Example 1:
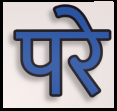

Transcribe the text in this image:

परे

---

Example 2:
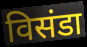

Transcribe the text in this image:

विसंडा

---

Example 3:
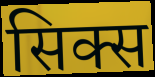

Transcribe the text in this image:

सिक्स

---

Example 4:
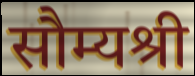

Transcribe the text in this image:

सौम्यश्री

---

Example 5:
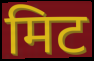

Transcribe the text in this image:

मिट